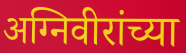
अग्निवीरांच्या